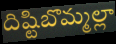
దిష్టిబొమ్మల్లా